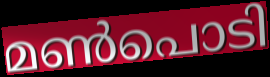
മൺപൊടി